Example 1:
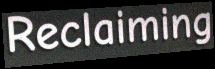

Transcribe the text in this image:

Reclaiming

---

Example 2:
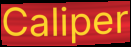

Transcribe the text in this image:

Caliper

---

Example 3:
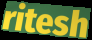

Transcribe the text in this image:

ritesh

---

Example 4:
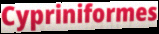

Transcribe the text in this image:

Cypriniformes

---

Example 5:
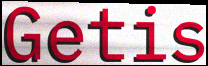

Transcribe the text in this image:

Getis